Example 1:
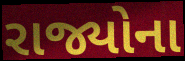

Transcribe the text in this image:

રાજ્યોના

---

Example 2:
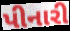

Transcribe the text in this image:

પીનારી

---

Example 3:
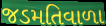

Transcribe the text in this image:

જડમતિવાળા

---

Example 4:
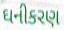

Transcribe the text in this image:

ઘનીકરણ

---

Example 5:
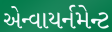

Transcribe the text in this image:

એન્વાયર્નમેન્ટ